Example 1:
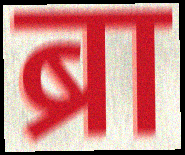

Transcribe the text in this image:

ब्रा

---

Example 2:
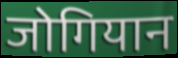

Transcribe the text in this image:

जोगियान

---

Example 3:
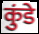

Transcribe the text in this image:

कुंडे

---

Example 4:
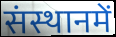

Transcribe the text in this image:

संस्थानमें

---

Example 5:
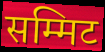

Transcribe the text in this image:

सम्मिट